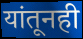
यांतूनही